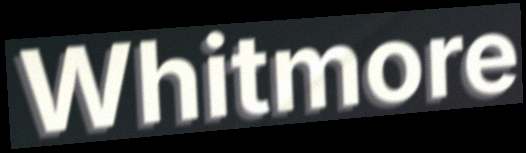
Whitmore